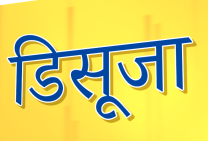
डिसूजा